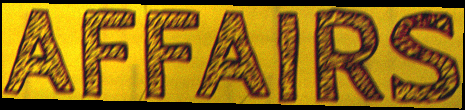
AFFAIRS